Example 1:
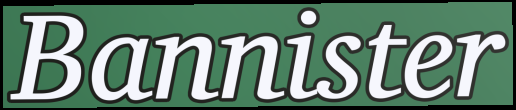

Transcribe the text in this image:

Bannister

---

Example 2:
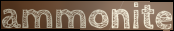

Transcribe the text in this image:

ammonite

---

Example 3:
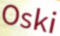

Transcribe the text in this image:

Oski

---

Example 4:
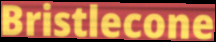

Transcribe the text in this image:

Bristlecone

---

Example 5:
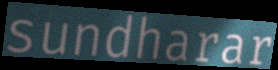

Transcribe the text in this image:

sundharar